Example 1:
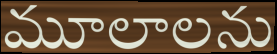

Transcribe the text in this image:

మూలాలను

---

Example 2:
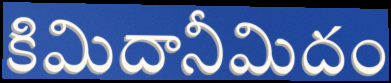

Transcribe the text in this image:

కిమిదానీమిదం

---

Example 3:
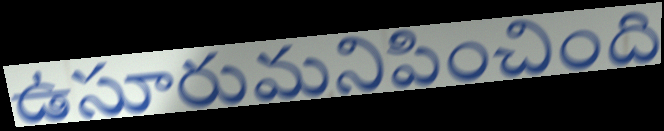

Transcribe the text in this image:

ఉసూరుమనిపించింది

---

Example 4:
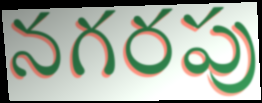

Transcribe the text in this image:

నగరపు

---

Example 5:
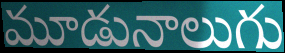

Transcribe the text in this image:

మూడునాలుగు